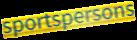
sportspersons